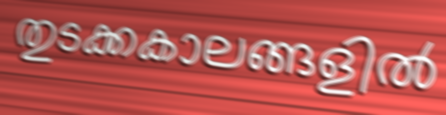
തുടക്കകാലങ്ങളിൽ